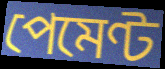
পেমেণ্ট